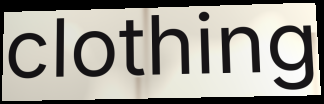
clothing